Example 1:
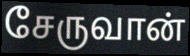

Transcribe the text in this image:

சேருவான்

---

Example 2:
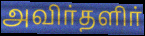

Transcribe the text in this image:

அவிர்தளிர்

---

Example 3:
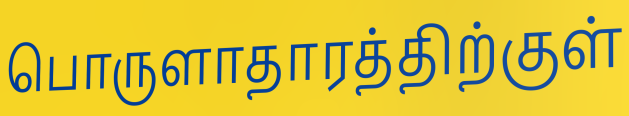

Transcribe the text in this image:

பொருளாதாரத்திற்குள்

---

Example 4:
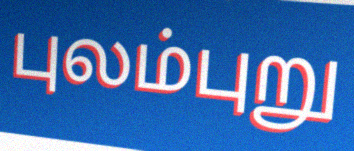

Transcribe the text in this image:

புலம்புறு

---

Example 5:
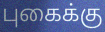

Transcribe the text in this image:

புகைக்கு